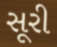
સૂરી